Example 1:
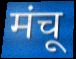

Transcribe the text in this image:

मंचू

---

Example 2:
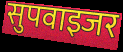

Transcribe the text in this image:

सुपवाइजर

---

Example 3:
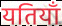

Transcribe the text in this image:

यतियाँ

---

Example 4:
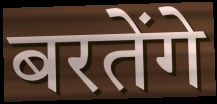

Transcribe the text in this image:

बरतेंगे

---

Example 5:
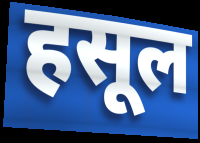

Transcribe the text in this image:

हसूल